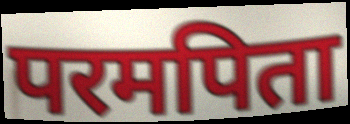
परमपिता